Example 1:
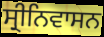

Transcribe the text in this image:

ਸ੍ਰੀਨਿਵਾਸਨ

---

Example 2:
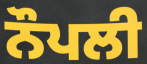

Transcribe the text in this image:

ਨੌਪਲੀ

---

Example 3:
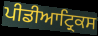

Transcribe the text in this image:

ਪੀਡੀਆਟ੍ਰਿਕਸ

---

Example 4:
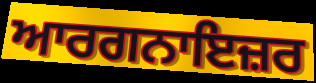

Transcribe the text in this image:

ਆਰਗਨਾਇਜ਼ਰ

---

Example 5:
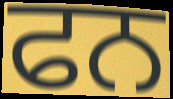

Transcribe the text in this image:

ਫਨ